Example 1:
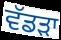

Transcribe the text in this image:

ਵੱਡਡ਼ਾ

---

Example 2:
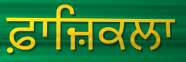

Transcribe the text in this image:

ਫ਼ਾਜ਼ਿਕਲਾ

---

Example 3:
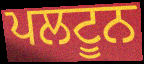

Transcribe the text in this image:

ਪਲਟੂਨ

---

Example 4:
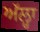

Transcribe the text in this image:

ਅੱਲ੍ਹਾ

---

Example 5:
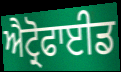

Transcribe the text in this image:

ਐਟ੍ਰੋਫਾਈਡ